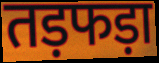
तड़फड़ा